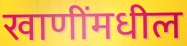
खाणींमधील